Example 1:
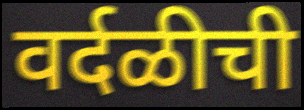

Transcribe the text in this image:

वर्दळीची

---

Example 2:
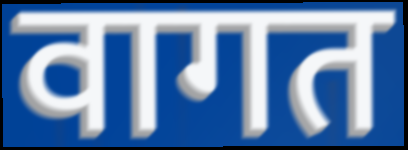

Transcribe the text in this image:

वागत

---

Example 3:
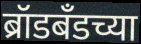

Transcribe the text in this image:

ब्रॉडबँडच्या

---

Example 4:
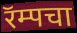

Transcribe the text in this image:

रॅम्पचा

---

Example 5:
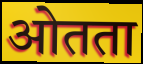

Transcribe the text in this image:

ओतता